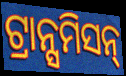
ଟ୍ରାନ୍ସମିସନ୍